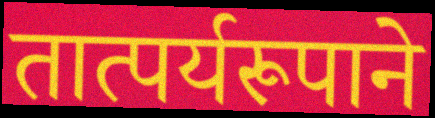
तात्पर्यरूपाने